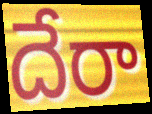
దేరా